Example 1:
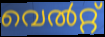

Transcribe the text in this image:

വെൽറ്റ്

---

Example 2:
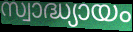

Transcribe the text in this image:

സ്വാദ്ധ്യായം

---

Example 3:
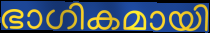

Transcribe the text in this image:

ഭാഗികമായി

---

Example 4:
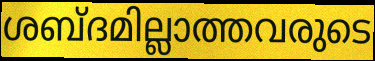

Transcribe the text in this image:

ശബ്ദമില്ലാത്തവരുടെ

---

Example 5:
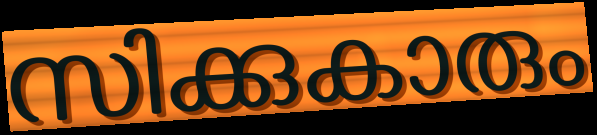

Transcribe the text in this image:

സിക്കുകാരും